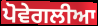
ਪੋਵੇਗਲੀਆ